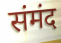
संमंद